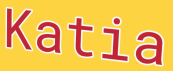
Katia